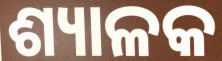
ଶ୍ୟାଳକ